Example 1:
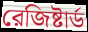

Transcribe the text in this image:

রেজিষ্টার্ড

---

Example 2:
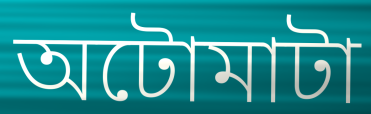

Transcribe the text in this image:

অটোমাটা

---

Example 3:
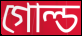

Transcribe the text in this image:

গোল্ড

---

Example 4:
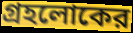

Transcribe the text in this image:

গ্রহলোকের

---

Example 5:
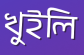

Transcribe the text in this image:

খুইলি